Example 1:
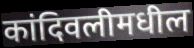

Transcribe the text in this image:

कांदिवलीमधील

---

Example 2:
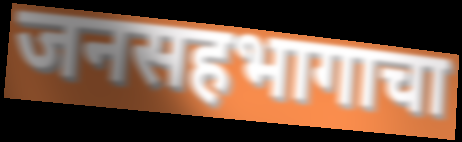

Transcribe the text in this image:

जनसहभागाचा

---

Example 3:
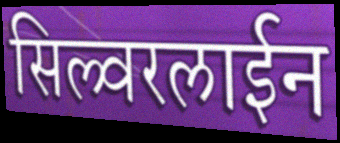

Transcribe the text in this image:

सिल्वरलाईन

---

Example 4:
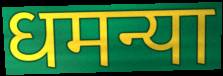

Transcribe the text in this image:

धमन्या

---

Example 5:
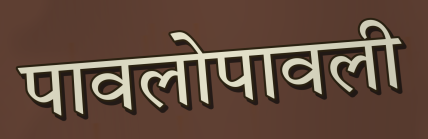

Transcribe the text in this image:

पावलोपावली